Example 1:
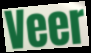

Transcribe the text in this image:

Veer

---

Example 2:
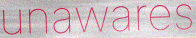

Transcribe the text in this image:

unawares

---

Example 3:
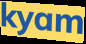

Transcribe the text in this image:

kyam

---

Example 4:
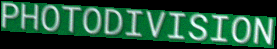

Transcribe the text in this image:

PHOTODIVISION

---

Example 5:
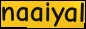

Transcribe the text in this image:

naaiyal